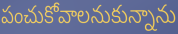
పంచుకోవాలనుకున్నాను